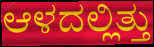
ಆಳದಲ್ಲಿತ್ತು